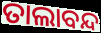
ତାଲାବନ୍ଦ